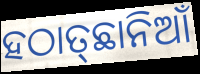
ହଠାତ୍‌ଛାନିଆଁ